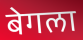
बेगला